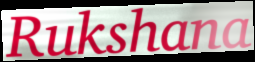
Rukshana